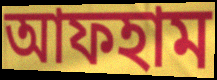
আফহাম